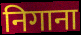
निगाना